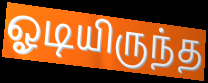
ஓடியிருந்த